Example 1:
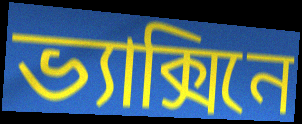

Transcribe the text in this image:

ভ্যাক্সিনে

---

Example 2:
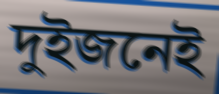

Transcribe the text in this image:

দুইজনেই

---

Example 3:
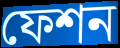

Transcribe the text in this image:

ফেশন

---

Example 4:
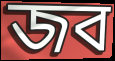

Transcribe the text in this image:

জব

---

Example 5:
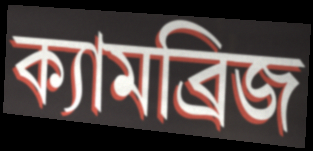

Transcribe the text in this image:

ক্যামব্রিজ